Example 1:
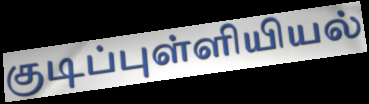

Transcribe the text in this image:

குடிப்புள்ளியியல்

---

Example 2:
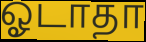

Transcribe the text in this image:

ஓடாதா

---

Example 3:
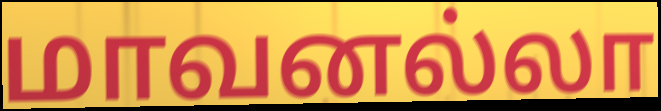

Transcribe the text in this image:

மாவனல்லா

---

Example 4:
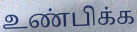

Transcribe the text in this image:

உண்பிக்க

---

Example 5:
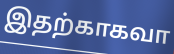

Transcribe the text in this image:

இதற்காகவா